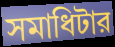
সমাধিটার